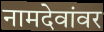
नामदेवांवर